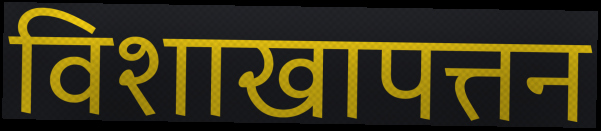
विशाखापत्तन